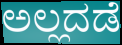
ಅಲ್ಲದಡೆ